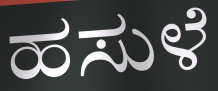
ಹಸುಳೆ